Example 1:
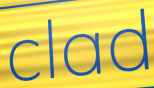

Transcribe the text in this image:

clad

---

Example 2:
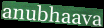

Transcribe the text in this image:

anubhaava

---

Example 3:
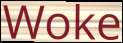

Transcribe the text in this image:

Woke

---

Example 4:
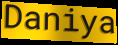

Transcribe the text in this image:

Daniya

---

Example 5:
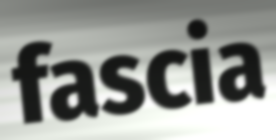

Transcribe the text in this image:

fascia